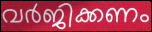
വർജിക്കണം